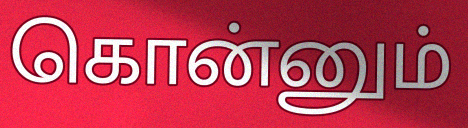
கொன்னும்